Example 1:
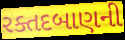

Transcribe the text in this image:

રક્તદબાણની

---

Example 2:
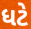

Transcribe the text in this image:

ધટે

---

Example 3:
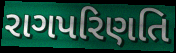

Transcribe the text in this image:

રાગપરિણતિ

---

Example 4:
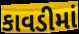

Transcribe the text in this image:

કાવડીમાં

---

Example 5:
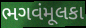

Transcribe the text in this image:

ભગવંમૂલકા